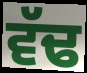
ਵੱਢ